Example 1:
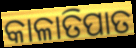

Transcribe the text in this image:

କାଳାତିପାତ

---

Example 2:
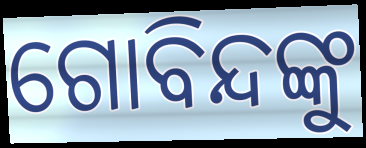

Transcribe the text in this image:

ଗୋବିନ୍ଦଙ୍କୁ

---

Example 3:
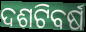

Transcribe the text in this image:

ଦଶଟିବର୍ଷ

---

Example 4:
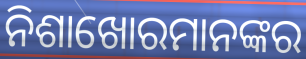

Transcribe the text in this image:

ନିଶାଖୋରମାନଙ୍କର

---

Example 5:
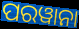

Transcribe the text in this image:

ପରୱାନା